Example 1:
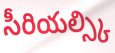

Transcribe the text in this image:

సీరియల్స్కి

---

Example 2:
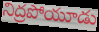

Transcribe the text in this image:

నిద్రపోయూడు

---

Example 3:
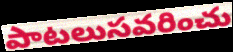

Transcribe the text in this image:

పాటలుసవరించు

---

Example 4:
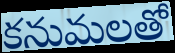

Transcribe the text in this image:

కనుమలతో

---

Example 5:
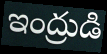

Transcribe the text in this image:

ఇంద్రుడి